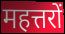
महत्तरों